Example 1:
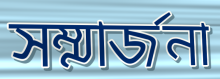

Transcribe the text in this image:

সম্মার্জনা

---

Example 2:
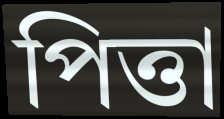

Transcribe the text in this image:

পিত্তা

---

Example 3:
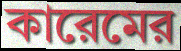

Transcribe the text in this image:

কারেমের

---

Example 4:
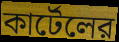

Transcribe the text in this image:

কার্টেলের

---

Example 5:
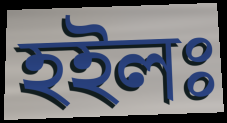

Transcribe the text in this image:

হইলঃ